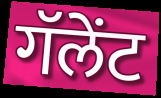
गॅलेंट